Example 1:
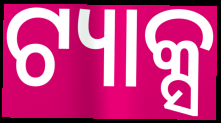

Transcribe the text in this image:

ଟ୍ୟାକ୍ସ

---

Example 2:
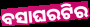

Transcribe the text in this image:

ବସାଘରଟିର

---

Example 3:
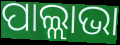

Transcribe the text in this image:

ପାଲ୍ଲାଭା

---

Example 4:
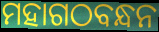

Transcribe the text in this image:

ମହାଗଠବନ୍ଧନ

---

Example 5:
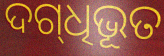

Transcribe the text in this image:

ଦଗ୍‍ଧିଭୂତ